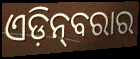
ଏଡ଼ିନ୍‍ବରାର